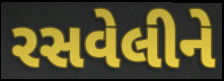
રસવેલીને